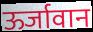
ऊर्जावान